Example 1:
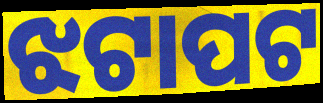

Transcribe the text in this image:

ଝଟାପଟ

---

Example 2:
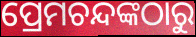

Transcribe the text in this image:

ପ୍ରେମଚନ୍ଦଙ୍କଠାରୁ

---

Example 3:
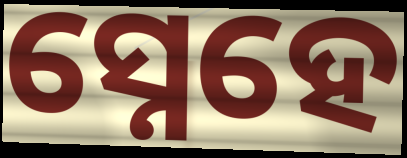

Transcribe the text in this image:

ସ୍ନେହେ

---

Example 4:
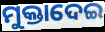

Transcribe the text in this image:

ମୁକ୍ତାଦେଇ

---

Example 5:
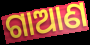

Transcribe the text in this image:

ଗାଆଣ